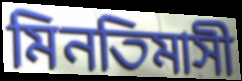
মিনতিমাসী